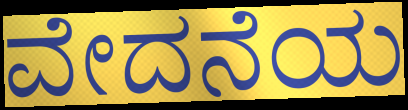
ವೇದನೆಯ